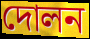
দোলন